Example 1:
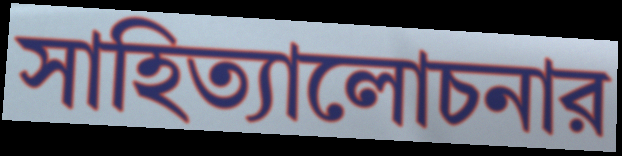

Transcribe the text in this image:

সাহিত্যালোচনার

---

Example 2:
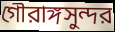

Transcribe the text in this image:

গৌরাঙ্গসুন্দর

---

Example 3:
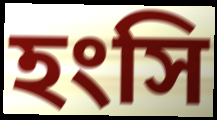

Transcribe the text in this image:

হংসি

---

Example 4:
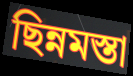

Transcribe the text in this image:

ছিন্নমস্তা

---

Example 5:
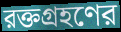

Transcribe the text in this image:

রক্তগ্রহণের